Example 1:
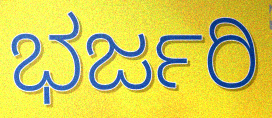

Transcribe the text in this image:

ಭರ್ಜರಿ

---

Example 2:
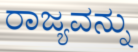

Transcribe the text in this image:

ರಾಜ್ಯವನ್ನು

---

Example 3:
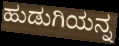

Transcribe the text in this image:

ಹುಡುಗಿಯನ್ನ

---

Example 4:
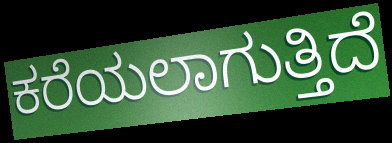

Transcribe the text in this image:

ಕರೆಯಲಾಗುತ್ತಿದೆ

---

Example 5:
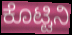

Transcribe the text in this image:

ಕೊಟ್ಟಿನಿ